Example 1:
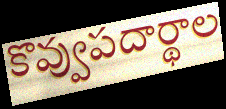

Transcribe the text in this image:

కొవ్వుపదార్థాల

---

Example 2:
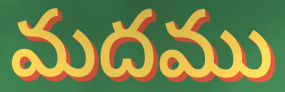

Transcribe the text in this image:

మదము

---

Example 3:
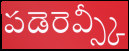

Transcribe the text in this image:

పడెరెవ్స్కీ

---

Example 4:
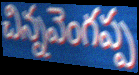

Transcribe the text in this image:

చిన్నవెంగప్ప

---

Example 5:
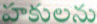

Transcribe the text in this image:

హకులను